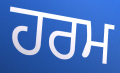
ਹਰਮ